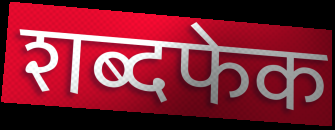
शब्दफेक